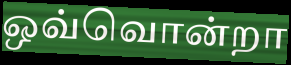
ஒவ்வொன்றா